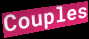
Couples